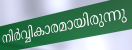
നിർവ്വികാരമായിരുന്നു